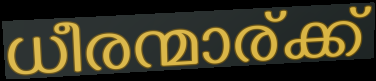
ധീരന്മാര്ക്ക്